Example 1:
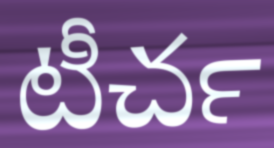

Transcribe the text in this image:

టీచర్‍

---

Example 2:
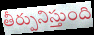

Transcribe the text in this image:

తీర్పునిస్తుంది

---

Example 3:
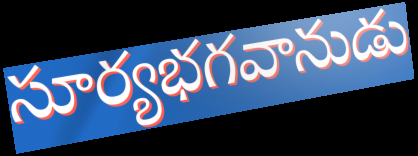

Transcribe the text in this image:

సూర్యభగవానుడు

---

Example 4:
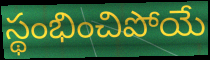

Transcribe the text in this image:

స్థంభించిపోయే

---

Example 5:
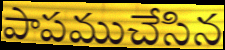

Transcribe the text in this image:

పాపముచేసిన